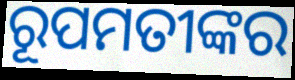
ରୂପମତୀଙ୍କର